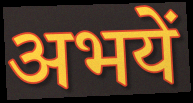
अभयें